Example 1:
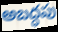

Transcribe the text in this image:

అబద్ధపు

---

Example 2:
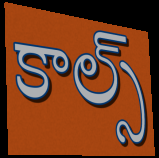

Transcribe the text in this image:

కాల్స్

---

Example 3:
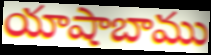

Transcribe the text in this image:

యాషాబాము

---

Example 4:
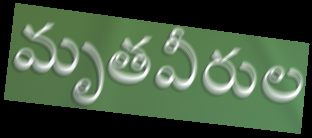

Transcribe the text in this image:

మృతవీరుల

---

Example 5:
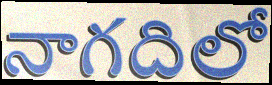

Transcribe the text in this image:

నాగదిలో